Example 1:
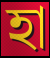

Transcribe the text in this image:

হা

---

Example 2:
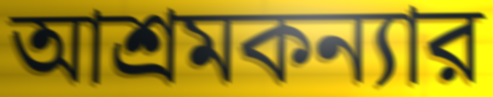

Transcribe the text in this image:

আশ্রমকন্যার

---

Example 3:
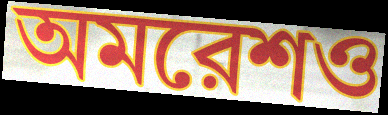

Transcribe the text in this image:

অমরেশও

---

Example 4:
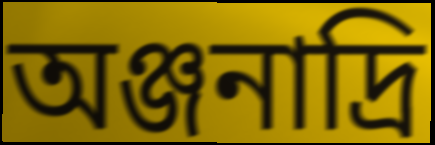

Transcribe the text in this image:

অঞ্জনাদ্রি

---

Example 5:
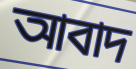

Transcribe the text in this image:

আবাদ